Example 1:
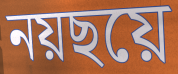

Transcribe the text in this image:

নয়ছয়ে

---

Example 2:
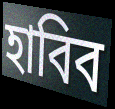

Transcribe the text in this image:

হাবিব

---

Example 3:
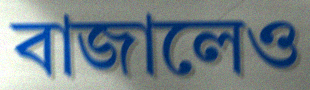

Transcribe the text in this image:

বাজালেও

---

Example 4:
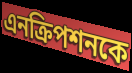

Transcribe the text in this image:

এনক্রিপশনকে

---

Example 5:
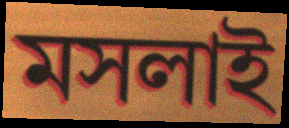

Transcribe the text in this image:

মসলাই